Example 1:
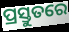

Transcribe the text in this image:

ପ୍ରସ୍ତୁତରେ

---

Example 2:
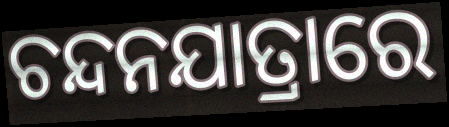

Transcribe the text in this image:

ଚନ୍ଦନଯାତ୍ରାରେ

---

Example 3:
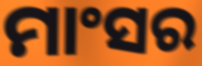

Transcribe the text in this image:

ମାଂସର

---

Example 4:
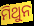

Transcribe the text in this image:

ମିଥୁନ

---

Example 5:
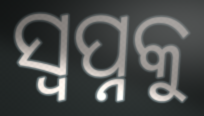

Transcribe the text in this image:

ସ୍ବପ୍ନକୁ